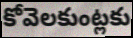
కోవెలకుంట్లకు